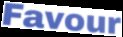
Favour